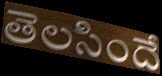
తెలసిందే